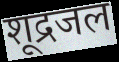
शूद्रजल